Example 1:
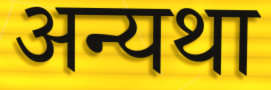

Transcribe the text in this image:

अन्यथा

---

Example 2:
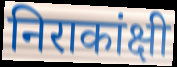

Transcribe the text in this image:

निराकांक्षी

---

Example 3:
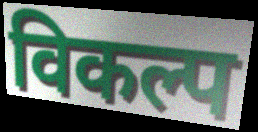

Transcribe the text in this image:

विकल्प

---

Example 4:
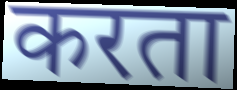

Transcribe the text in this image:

करता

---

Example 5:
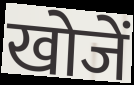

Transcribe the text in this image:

खोजें